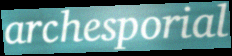
archesporial